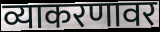
व्याकरणावर